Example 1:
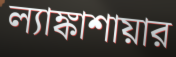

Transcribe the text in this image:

ল্যাঙ্কাশায়ার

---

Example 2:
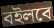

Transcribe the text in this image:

বইলবে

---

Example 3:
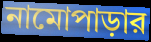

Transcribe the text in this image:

নামোপাড়ার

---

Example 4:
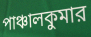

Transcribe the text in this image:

পাঞ্চালকুমার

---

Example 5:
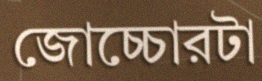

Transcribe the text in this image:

জোচ্চোরটা